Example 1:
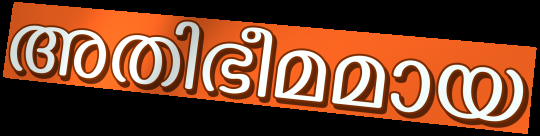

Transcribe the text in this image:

അതിഭീമമായ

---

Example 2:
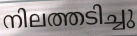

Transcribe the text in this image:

നിലത്തടിച്ചു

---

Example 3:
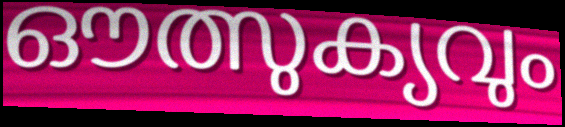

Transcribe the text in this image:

ഔത്സുക്യവും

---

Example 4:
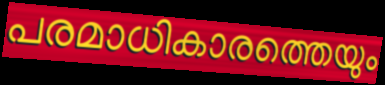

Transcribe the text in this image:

പരമാധികാരത്തെയും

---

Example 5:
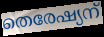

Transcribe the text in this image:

തെരേഷ്യന്